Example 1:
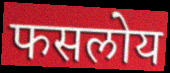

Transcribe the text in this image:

फसलोय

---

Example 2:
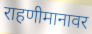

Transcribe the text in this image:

राहणीमानावर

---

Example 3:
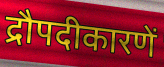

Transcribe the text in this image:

द्रौपदीकारणें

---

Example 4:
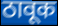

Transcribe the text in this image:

ठावूक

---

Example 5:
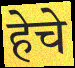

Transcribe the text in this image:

हेचे